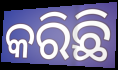
କରିଛି